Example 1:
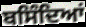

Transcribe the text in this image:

ਬਸਿੰਦਿਆਂ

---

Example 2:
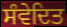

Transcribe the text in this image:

ਸੰਵੇਦਿਤ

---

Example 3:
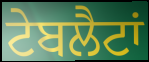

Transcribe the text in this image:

ਟੇਬਲੈਟਾਂ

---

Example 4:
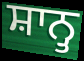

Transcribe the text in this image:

ਸ਼ਾਨ੍ਤ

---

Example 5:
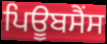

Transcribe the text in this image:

ਪਿਊਬਸੈਂਸ